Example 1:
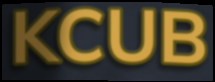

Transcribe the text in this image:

KCUB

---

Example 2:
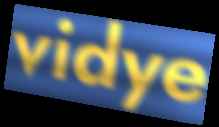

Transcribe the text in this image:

vidye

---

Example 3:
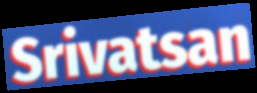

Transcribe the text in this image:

Srivatsan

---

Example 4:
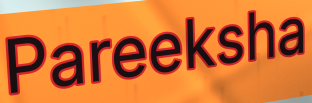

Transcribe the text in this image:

Pareeksha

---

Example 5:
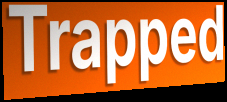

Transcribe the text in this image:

Trapped